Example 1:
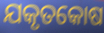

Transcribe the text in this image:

ଯକୃତକୋଷ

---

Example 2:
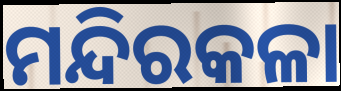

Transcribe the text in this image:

ମନ୍ଦିରକଳା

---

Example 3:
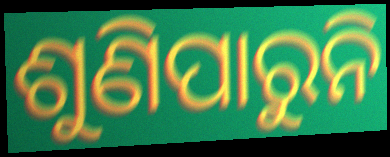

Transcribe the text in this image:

ଶୁଣିପାରୁନି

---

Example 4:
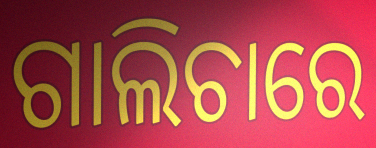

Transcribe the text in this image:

ଗାଲିଚାରେ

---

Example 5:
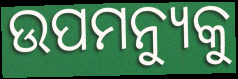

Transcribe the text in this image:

ଉପମନ୍ୟୁକୁ